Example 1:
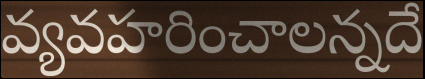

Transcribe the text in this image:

వ్యవహరించాలన్నదే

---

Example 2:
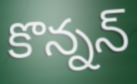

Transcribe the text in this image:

కొన్నన్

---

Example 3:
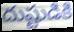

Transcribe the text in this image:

దుష్టుడికి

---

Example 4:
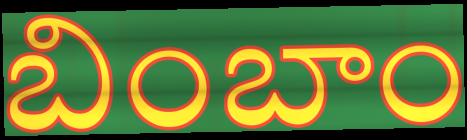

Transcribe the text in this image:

బింబాం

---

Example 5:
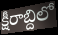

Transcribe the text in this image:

క్షీరాబ్దిలో